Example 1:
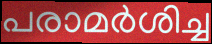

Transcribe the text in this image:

പരാമർശിച്ച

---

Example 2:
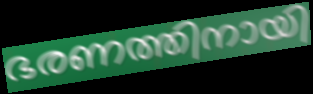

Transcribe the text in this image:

ഭരണത്തിനായി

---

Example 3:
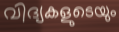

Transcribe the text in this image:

വിദ്യകളുടെയും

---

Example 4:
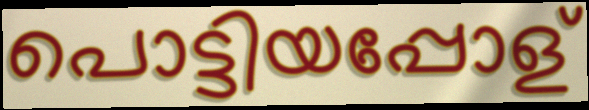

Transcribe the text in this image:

പൊട്ടിയപ്പോള്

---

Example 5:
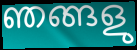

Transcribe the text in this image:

ഞങ്ങളു